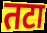
तटा